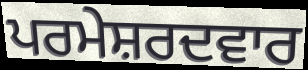
ਪਰਮੇਸ਼ਰਦਵਾਰ